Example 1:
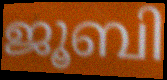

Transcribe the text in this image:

ജൂബി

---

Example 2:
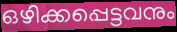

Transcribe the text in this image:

ഒഴിക്കപ്പെട്ടവനും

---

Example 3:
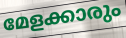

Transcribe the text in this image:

മേളക്കാരും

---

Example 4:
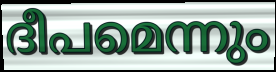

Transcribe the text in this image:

ദീപമെന്നും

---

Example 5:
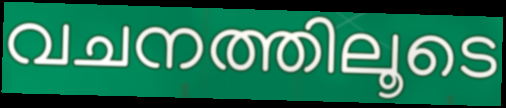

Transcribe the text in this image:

വചനത്തിലൂടെ